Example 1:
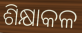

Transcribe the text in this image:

ଶିକ୍ଷାକଳ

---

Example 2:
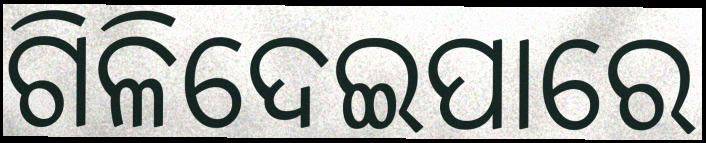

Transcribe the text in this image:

ଗିଳିଦେଇପାରେ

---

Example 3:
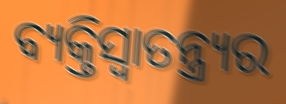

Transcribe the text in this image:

ବ୍ୟକ୍ତିସ୍ୱାତନ୍ତ୍ର୍ୟର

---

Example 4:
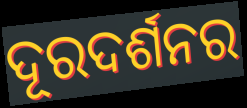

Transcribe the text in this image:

ଦୂରଦର୍ଶନର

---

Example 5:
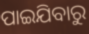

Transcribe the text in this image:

ପାଇଯିବାରୁ